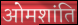
ओमशांति